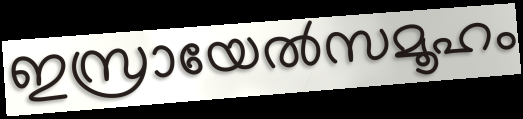
ഇസ്രായേൽസമൂഹം